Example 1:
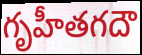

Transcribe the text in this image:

గృహీతగదౌ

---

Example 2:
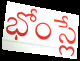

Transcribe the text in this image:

భోంస్లే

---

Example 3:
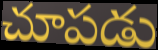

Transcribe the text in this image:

చూపడు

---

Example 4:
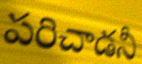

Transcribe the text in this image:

పరిచాడనీ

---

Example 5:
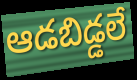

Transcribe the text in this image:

ఆడబిడ్డలే